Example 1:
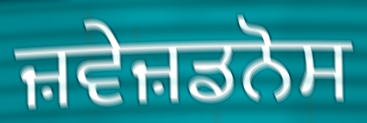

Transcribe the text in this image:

ਜ਼ਵੇਜ਼ਡਨੋਸ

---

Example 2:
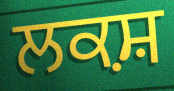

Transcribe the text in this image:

ਲਕ਼ਸ਼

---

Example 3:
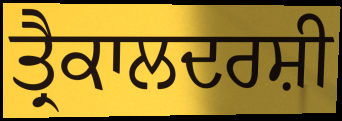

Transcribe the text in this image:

ਤ੍ਰੈਕਾਲਦਰਸ਼ੀ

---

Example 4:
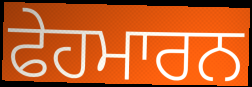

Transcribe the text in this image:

ਫੇਹਮਾਰਨ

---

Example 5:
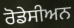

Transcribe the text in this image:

ਰੋਡੇਸੀਅਨ